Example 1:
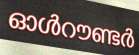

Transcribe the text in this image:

ഓൾറൗണ്ടർ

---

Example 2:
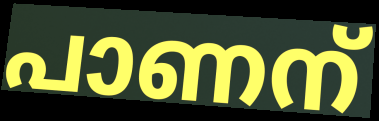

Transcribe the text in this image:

പാണന്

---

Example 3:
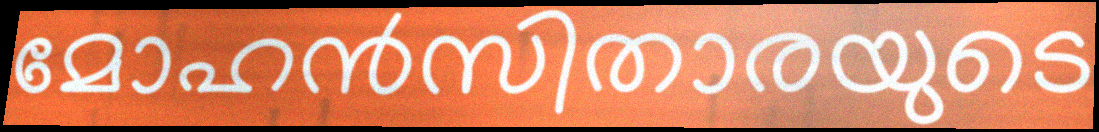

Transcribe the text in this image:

മോഹൻസിതാരയുടെ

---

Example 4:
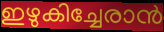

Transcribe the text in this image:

ഇഴുകിച്ചേരാൻ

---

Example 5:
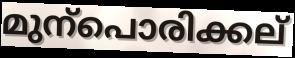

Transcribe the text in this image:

മുന്പൊരിക്കല്